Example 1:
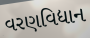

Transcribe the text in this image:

વરણવિદ્યાન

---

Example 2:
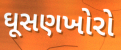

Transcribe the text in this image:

ઘૂસણખોરો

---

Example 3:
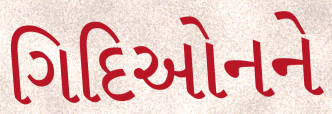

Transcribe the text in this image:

ગિદિઓનને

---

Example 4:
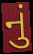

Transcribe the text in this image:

નું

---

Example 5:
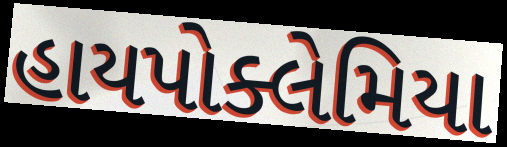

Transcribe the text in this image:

હાયપોક્લેમિયા